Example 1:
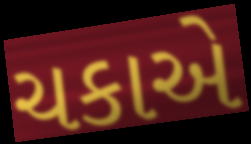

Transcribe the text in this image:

ચકાએ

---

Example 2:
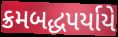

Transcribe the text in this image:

ક્રમબદ્ધપર્યાયે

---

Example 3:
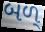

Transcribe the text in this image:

બળ્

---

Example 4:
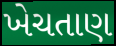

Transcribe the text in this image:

ખેચતાણ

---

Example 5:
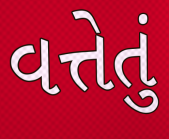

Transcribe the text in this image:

વત્તેતું